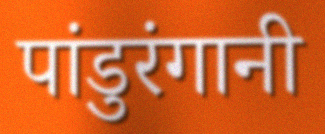
पांडुरंगानी